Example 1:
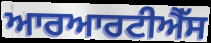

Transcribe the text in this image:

ਆਰਆਰਟੀਐੱਸ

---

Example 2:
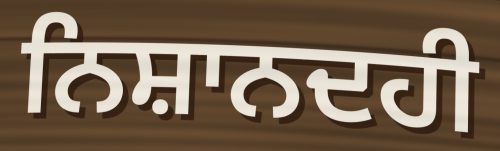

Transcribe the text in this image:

ਨਿਸ਼ਾਨਦਹੀ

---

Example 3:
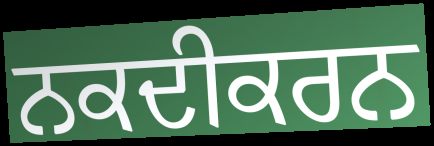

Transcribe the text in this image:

ਨਕਦੀਕਰਨ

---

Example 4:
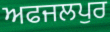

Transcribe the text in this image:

ਅਫਜਲਪੁਰ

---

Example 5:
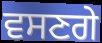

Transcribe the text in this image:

ਵਸਣਗੇ